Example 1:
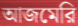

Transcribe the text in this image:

আজমেরি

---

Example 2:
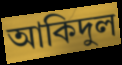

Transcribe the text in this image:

আকিদুল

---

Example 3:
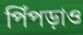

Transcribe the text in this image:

পিঁপড়াও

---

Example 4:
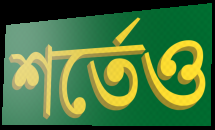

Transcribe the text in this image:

শর্তেও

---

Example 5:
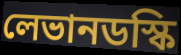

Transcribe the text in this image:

লেভানডস্কি